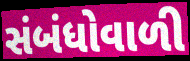
સંબંધોવાળી